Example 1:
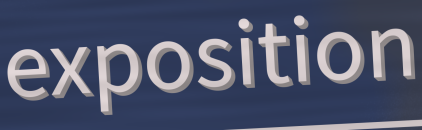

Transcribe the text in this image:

exposition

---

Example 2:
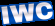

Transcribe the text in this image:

IWC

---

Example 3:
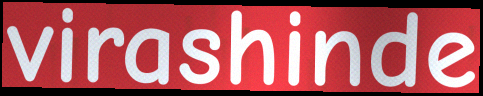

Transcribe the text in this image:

virashinde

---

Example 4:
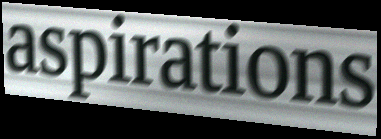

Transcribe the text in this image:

aspirations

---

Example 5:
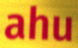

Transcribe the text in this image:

ahu